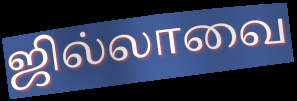
ஜில்லாவை